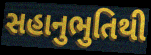
સહાનુભુતિથી